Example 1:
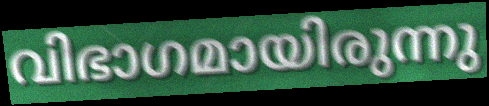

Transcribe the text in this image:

വിഭാഗമായിരുന്നു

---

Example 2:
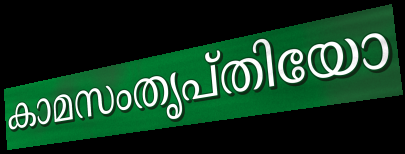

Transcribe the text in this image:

കാമസംതൃപ്തിയോ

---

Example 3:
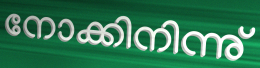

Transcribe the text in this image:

നോക്കിനിന്നു്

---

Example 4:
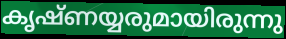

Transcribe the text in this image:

കൃഷ്ണയ്യരുമായിരുന്നു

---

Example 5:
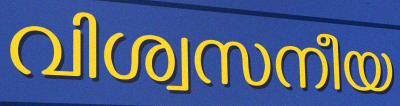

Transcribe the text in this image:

വിശ്വസനീയ